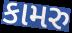
કામરુ